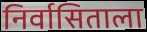
निर्वासिताला